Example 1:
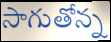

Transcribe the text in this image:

సాగుతోన్న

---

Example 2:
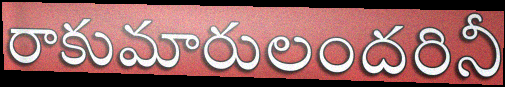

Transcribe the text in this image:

రాకుమారులందరినీ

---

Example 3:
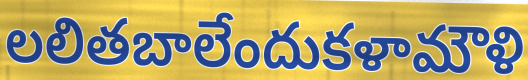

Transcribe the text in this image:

లలితబాలేందుకళామౌళి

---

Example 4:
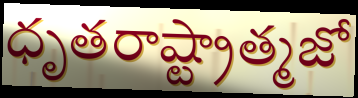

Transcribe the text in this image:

ధృతరాష్ట్రాత్మజో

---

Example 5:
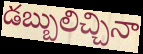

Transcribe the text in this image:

డబ్బులిచ్చినా